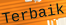
Terbaik